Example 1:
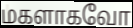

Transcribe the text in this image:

மகளாகவோ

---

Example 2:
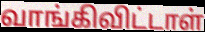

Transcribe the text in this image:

வாங்கிவிட்டாள்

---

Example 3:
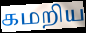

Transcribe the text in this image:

கமறிய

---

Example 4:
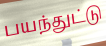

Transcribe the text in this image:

பயந்துட்டு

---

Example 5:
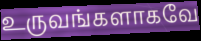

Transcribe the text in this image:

உருவங்களாகவே